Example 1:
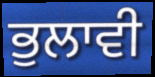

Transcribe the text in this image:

ਭੁਲਾਵੀ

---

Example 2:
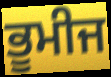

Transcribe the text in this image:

ਭੂਮੀਜ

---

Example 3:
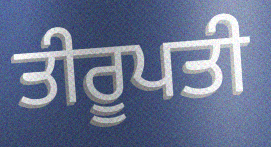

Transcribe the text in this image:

ਤੀਰੂਪਤੀ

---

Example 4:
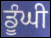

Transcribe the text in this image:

ਡੂੰਘੀ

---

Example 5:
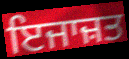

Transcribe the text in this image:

ਇਜਾਜ਼ਤ